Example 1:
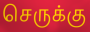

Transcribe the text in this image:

செருக்கு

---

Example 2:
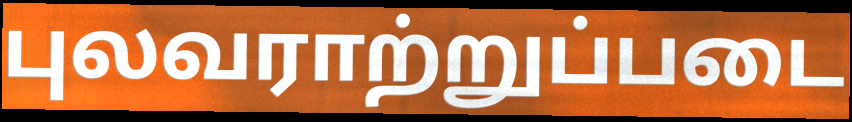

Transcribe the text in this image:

புலவராற்றுப்படை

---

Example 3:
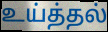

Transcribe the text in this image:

உய்த்தல்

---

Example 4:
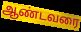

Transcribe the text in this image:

ஆண்டவரை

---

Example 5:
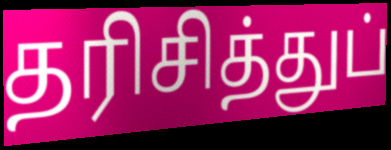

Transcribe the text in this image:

தரிசித்துப்